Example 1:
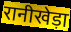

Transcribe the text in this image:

रानीखेड़ा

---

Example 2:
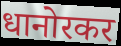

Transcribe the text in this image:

धानोरकर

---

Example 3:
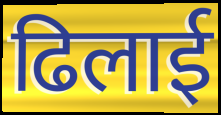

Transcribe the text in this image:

ढिलाई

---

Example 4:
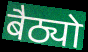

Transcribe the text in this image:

बैठ्यो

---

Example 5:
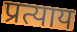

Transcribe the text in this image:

प्रत्याय